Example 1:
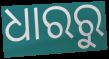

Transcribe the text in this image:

ଧାରରୁ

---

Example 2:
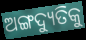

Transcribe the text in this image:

ଅଙ୍ଗଦ୍ୟୁତିକୁ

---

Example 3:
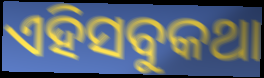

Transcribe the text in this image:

ଏହିସବୁକଥା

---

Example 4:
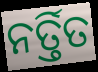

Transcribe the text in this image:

ନର୍ତ୍ତିତ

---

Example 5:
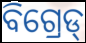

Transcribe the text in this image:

ବିଗ୍ରେଡ୍